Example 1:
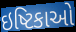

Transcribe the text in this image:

ઇષ્ટિકાઓ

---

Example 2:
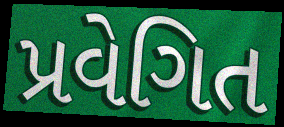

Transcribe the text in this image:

પ્રવેગિત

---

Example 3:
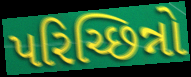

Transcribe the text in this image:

પરિચ્છિન્નો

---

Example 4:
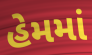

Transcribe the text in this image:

હેમમાં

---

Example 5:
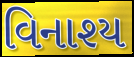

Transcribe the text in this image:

વિનાશ્ય